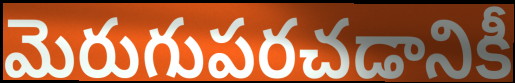
మెరుగుపరచడానికీ